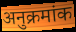
अनुक्रमांक